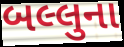
બલ્લુના